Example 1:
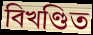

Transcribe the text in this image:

বিখণ্ডিত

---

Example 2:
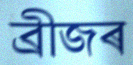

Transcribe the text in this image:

ব্ৰীজৰ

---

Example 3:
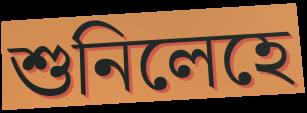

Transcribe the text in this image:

শুনিলেহে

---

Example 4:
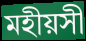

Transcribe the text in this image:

মহীয়সী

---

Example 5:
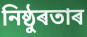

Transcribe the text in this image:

নিষ্ঠুৰতাৰ